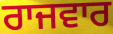
ਰਾਜਵਾਰ